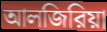
আলজিরিয়া